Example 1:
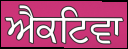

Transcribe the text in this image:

ਐਕਟਿਵਾ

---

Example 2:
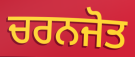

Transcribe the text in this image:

ਚਰਨਜੋਤ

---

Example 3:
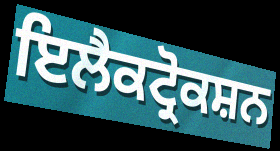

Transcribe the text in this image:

ਇਲੈਕਟ੍ਰੋਕਸ਼ਨ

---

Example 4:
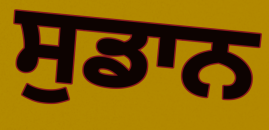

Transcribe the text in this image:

ਸੁਡਾਨ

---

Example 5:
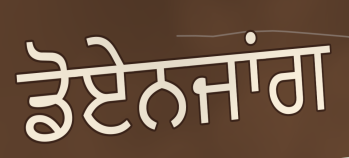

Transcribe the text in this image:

ਡੋਏਨਜਾਂਗ